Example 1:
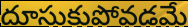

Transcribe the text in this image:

దూసుకుపోవడమే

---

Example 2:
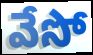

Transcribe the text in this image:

వేసో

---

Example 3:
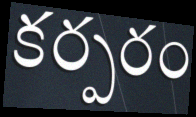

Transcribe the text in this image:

కర్పరం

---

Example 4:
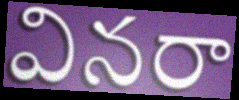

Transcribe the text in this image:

వినరా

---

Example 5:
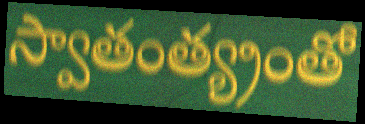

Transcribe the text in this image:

స్వాతంత్య్రంతో